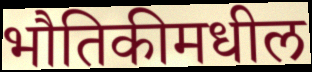
भौतिकीमधील